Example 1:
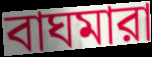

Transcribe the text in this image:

বাঘমারা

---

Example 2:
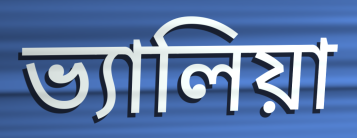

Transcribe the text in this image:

ভ্যালিয়া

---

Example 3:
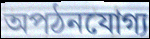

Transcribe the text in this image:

অপঠনযোগ্য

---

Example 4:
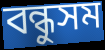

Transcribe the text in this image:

বন্ধুসম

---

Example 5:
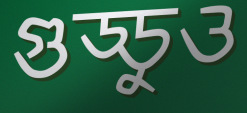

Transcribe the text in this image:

গুড্ডুও